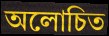
অলোচিত